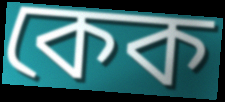
কেক